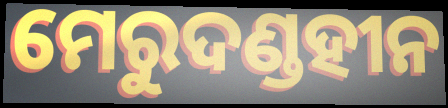
ମେରୁଦଣ୍ଡହୀନ